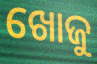
ଖୋଜୁ